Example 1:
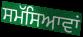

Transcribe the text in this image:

ਸਮੱਸਿਆਵਾਂ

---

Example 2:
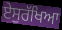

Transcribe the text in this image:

ਏਸੁਰੱਖਿਆ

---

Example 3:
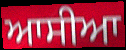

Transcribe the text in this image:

ਆਸੀਆ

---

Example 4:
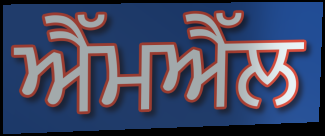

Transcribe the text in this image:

ਐੱਮਐੱਲ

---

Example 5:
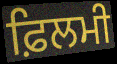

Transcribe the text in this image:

ਫ਼ਿਲਮੀ